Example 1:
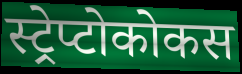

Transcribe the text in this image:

स्ट्रेप्टोकोकस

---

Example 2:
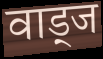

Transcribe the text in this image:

वाड्ज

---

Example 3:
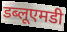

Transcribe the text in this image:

डब्लूएमडी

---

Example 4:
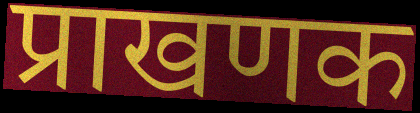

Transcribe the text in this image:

प्राखणक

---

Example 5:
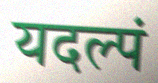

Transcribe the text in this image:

यदल्पं